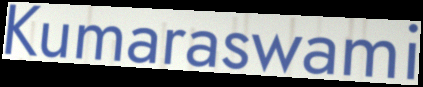
Kumaraswami